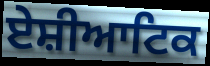
ਏਸ਼ੀਆਟਿਕ